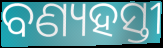
ବଣ୍ୟହସ୍ତୀ